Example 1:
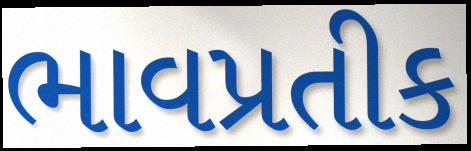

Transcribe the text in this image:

ભાવપ્રતીક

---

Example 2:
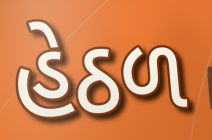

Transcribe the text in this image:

હેઠળ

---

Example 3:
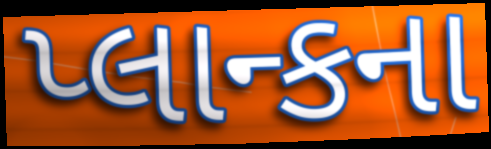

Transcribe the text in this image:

પ્લાન્કના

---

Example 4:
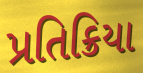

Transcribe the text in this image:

પ્રતિક્રિયા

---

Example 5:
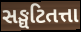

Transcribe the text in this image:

સઙ્ઘટિતત્તા